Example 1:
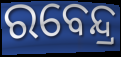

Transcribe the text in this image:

ରବେନ୍ଦ୍ର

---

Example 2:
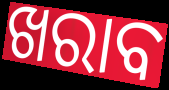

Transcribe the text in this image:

ଖରାବ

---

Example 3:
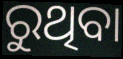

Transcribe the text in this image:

ରୁଥିବା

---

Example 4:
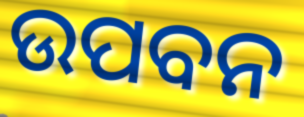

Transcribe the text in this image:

ଉପବନ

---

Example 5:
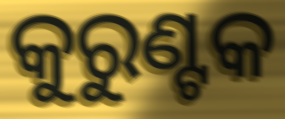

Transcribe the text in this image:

କୁରୁଣ୍ଟକ